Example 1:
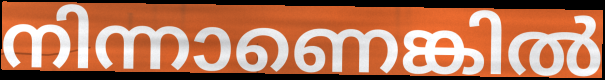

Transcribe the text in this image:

നിന്നാണെങ്കിൽ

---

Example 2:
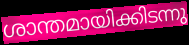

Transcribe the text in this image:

ശാന്തമായിക്കിടന്നു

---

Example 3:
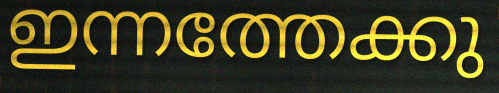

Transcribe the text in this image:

ഇന്നത്തേക്കു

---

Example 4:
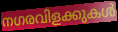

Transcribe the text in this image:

നഗരവിളക്കുകൾ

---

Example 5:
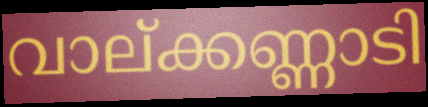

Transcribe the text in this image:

വാല്ക്കണ്ണാടി